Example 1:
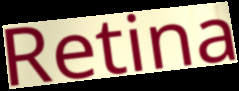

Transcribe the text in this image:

Retina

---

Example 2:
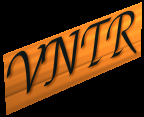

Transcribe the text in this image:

VNTR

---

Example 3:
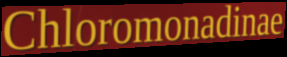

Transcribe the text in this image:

Chloromonadinae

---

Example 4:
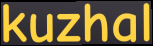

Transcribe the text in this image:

kuzhal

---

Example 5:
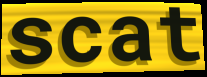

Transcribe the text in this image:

scat